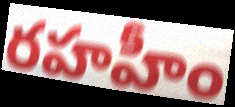
రహహీం